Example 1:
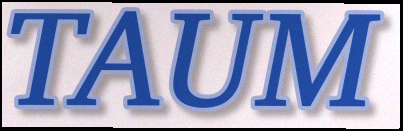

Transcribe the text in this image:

TAUM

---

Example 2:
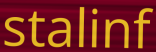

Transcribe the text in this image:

stalinf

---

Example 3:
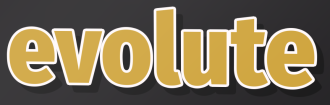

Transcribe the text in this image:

evolute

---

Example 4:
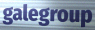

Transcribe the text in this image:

galegroup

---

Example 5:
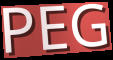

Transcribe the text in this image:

PEG